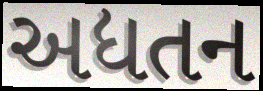
અદ્યતન